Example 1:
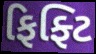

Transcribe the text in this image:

ફિફ્ટિ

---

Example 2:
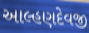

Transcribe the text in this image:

આલ્હણદેવજી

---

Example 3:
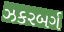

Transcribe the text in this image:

ઝકરબર્ગ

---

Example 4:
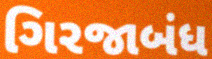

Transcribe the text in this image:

ગિરજાબંધ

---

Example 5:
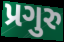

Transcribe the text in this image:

પ્રગુરુ